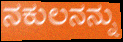
ನಕುಲನನ್ನು